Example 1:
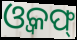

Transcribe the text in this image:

ଓ୍ୱକଫ୍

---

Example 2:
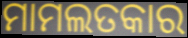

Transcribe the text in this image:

ମାମଲତକାର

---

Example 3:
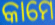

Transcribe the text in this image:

କାମେ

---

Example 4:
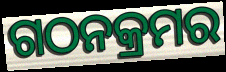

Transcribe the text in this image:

ଗଠନକ୍ରମର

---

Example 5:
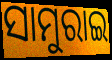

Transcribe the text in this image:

ସାମୁରାଇ